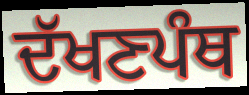
ਦੱਖਣਪੰਥ